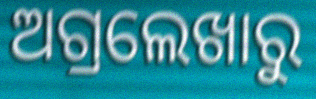
ଅଗ୍ରଲେଖାରୁ